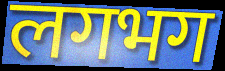
लगभग